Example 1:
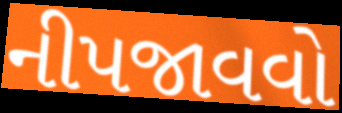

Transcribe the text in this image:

નીપજાવવો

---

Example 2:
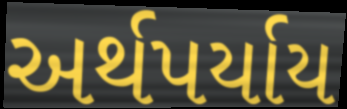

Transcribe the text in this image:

અર્થપર્યાય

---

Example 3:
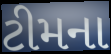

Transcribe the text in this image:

ટીમના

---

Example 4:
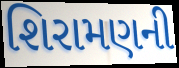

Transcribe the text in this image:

શિરામણની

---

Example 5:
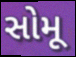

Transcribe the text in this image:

સોમૂ